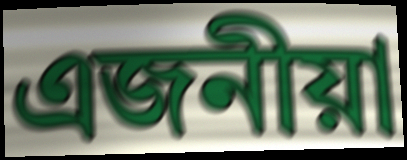
এজনীয়া